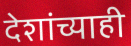
देशांच्याही